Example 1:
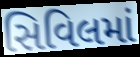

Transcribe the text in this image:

સિવિલમાં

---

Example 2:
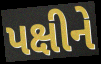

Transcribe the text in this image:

પક્ષીને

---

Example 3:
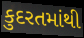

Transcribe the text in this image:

કુદરતમાંથી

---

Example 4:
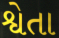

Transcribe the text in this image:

શ્વેતા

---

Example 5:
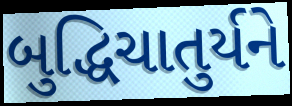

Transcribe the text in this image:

બુદ્ધિચાતુર્યને